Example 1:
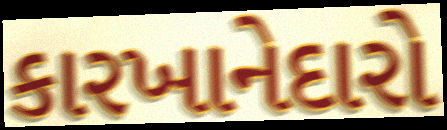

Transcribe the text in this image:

કારખાનેદારો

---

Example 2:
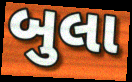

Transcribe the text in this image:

બુલા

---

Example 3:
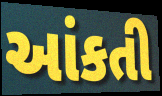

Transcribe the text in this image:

આંકતી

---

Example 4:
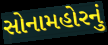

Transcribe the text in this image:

સોનામહોરનું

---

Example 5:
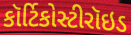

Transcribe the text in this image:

કૉર્ટિકોસ્ટીરૉઇડ